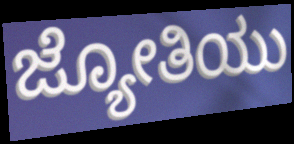
ಜ್ಯೋತಿಯು